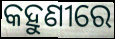
କହୁଣୀରେ